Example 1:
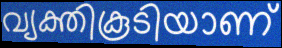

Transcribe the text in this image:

വ്യക്തികൂടിയാണ്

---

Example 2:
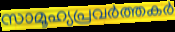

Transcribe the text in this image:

സാമൂഹ്യപ്രവർത്തകർ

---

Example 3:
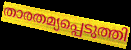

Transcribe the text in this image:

താരതമ്യപ്പെടുത്തി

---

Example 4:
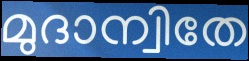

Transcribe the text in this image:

മുദാന്വിതേ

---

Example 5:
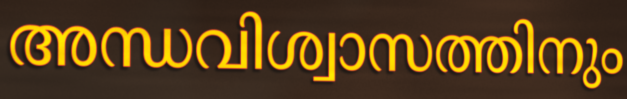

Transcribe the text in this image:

അന്ധവിശ്വാസത്തിനും